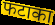
फटाका